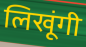
लिखूंगी